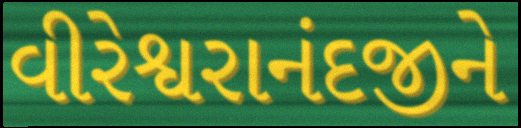
વીરેશ્વરાનંદજીને